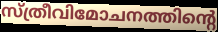
സ്ത്രീവിമോചനത്തിന്റെ